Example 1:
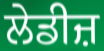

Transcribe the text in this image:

ਲੇਡੀਜ਼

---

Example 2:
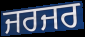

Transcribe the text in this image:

ਜਰਜਰ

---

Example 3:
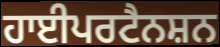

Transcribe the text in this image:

ਹਾਈਪਰਟੈਨਸ਼ਨ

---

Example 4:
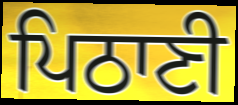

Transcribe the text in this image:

ਪਿਠਾਣੀ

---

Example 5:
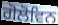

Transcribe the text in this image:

ਗੋਲੋਵਿਨ